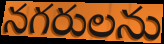
నగరులను